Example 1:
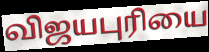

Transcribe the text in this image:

விஜயபுரியை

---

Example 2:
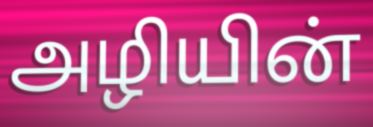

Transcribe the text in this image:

அழியின்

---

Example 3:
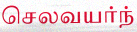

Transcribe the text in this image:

செலவயர்ந்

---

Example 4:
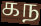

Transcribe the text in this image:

கந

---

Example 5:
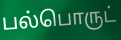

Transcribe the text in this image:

பல்பொருட்